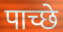
पाच्छे